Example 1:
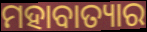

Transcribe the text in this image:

ମହାବାତ୍ୟାର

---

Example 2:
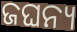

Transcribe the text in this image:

ଜଘନ୍ଯ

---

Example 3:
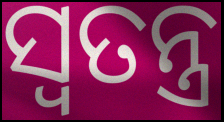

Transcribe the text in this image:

ସ୍ୱତନ୍ତ୍ର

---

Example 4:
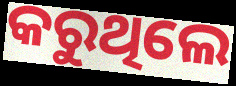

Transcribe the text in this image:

କରୁଥିଲେ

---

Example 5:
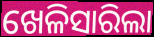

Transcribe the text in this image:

ଖେଳିସାରିଲା